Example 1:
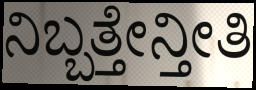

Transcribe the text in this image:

ನಿಬ್ಬತ್ತೇನ್ತೀತಿ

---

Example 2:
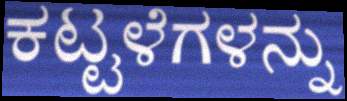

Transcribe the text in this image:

ಕಟ್ಟಳೆಗಳನ್ನು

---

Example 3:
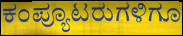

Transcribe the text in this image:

ಕಂಪ್ಯೂಟರುಗಳಿಗೂ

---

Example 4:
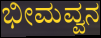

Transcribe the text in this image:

ಭೀಮವ್ವನ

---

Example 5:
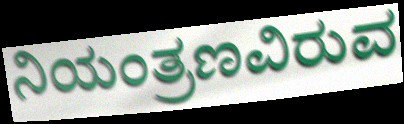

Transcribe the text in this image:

ನಿಯಂತ್ರಣವಿರುವ